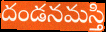
దండనమస్తి